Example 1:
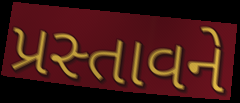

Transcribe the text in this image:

પ્રસ્તાવને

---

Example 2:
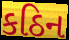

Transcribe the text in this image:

કઠિન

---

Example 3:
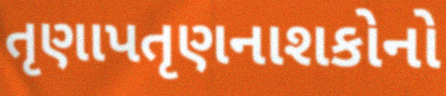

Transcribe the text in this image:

તૃણાપતૃણનાશકોનો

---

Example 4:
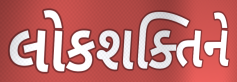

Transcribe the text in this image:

લોકશક્તિને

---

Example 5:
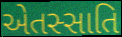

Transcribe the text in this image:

એતસ્સાતિ